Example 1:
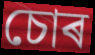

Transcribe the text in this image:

চোৰ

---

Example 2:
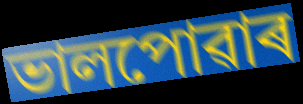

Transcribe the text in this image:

ভালপোৱাৰ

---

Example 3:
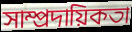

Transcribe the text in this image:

সাম্প্ৰদায়িকতা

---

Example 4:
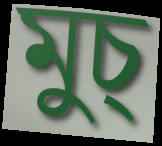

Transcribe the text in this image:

মুচ্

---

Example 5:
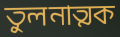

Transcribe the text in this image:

তুলনাত্মক